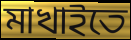
মাখাইতে